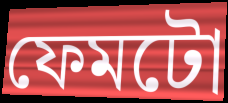
ফেমটো